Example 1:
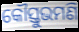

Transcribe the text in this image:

କୌସ୍ତୁଭମଣି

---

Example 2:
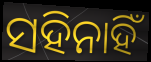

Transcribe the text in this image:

ସହିନାହିଁ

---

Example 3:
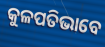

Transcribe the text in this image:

କୁଳପତିଭାବେ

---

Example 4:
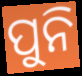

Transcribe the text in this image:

ପୁନି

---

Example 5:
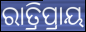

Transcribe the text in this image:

ରାତ୍ରିପ୍ରାୟ